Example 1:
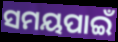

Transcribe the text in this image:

ସମୟପାଇଁ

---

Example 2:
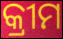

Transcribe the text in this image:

କ୍ରୀମ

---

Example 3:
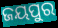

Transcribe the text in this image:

ଜୟପୁର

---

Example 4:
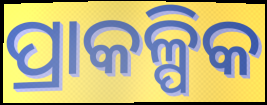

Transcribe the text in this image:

ପ୍ରାକଳ୍ପିକ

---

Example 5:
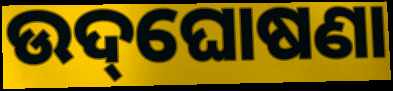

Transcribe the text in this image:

ଉଦ୍‌ଘୋଷଣା